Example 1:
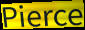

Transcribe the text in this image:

Pierce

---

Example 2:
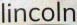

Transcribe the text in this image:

lincoln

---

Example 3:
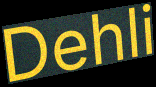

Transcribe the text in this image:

Dehli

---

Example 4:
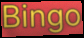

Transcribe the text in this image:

Bingo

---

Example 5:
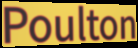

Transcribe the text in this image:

Poulton